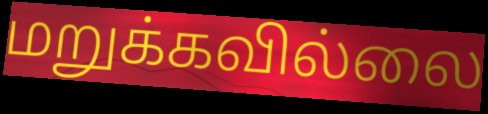
மறுக்கவில்லை